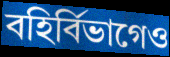
বহির্বিভাগেও